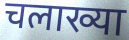
चलाख्या